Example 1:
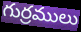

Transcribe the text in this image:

గుర్రములు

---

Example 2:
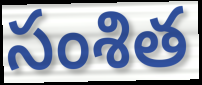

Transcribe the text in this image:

సంశిత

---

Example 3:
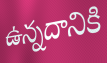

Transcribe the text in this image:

ఉన్నదానికి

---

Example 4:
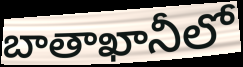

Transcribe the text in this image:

బాతాఖానీలో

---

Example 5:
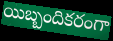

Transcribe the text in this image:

యిబ్బందికరంగా